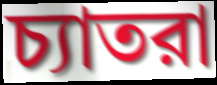
চ্যাতরা